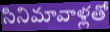
సినిమావాళ్లతో